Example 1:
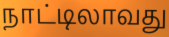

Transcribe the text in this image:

நாட்டிலாவது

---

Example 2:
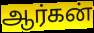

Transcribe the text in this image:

ஆர்கன்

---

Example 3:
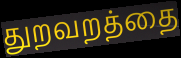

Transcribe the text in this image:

துறவறத்தை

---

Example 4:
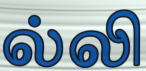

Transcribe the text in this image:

ல்லி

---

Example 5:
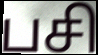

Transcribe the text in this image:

பசி